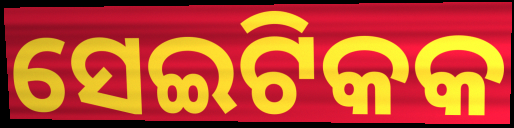
ସେଇଟିକକ